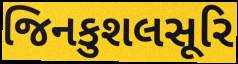
જિનકુશલસૂરિ